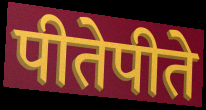
पीतेपीते